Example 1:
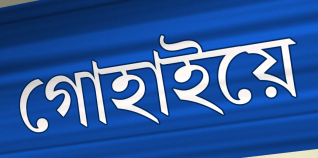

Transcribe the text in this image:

গোহাইয়ে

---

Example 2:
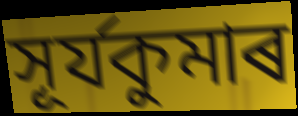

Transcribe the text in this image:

সূৰ্যকুমাৰ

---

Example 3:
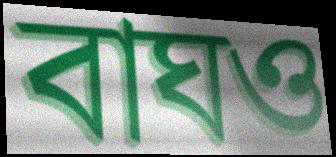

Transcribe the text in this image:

বাঘও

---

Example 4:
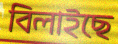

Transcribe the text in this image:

বিলাইছে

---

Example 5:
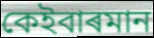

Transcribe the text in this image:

কেইবাৰমান